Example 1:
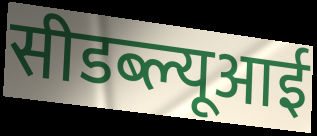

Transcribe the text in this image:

सीडब्ल्यूआई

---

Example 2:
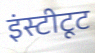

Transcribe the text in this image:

इंस्टीटूट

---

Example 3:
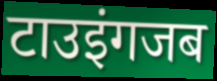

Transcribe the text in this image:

टाउइंगजब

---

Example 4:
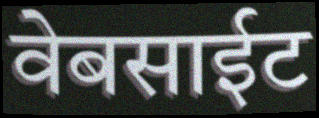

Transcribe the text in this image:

वेबसाईट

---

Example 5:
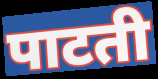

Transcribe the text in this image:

पाटती